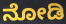
ನೋಡಿ